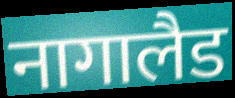
नागालैड